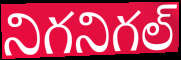
నిగనిగల్